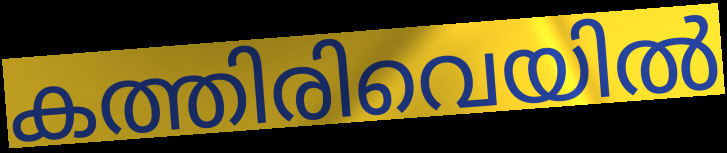
കത്തിരിവെയിൽ